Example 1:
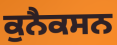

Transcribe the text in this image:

ਕੁਨੈਕਸਨ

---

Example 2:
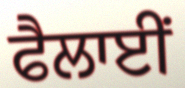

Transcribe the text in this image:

ਫੈਲਾਈਂ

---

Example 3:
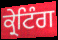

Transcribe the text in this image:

ਕ੍ਰੇਟਿੰਗ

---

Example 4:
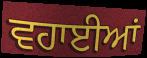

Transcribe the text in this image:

ਵਹਾਈਆਂ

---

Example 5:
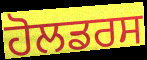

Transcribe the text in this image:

ਹੋਲਡਰਸ